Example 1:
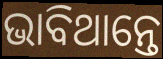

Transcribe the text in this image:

ଭାବିଥାନ୍ତେ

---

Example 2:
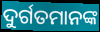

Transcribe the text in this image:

ଦୁର୍ଗତମାନଙ୍କ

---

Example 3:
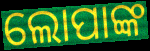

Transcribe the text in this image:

ଲୋପାଙ୍କ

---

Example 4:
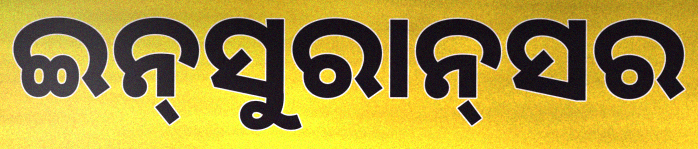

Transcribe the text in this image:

ଇନ୍‍ସୁରାନ୍‍ସର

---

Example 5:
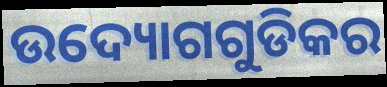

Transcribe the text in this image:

ଉଦ୍ୟୋଗଗୁଡିକର